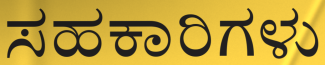
ಸಹಕಾರಿಗಳು